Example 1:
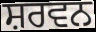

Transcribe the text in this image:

ਸ਼ਰਵਨ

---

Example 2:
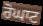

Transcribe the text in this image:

ਰੋਘਾਟ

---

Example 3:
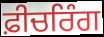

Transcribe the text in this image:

ਫ਼ੀਚਰਿੰਗ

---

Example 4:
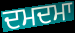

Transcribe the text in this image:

ਦਮਦਮਾ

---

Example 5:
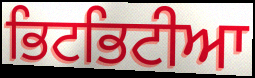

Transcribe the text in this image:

ਭਿਟਭਿਟੀਆ